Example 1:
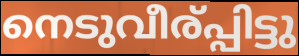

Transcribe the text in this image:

നെടുവീര്പ്പിട്ടു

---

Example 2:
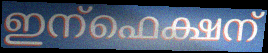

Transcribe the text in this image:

ഇന്ഫെക്ഷന്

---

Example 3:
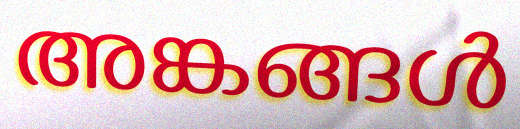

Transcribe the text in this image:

അങ്കങ്ങൾ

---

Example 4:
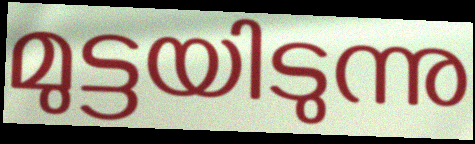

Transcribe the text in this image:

മുട്ടയിടുന്നു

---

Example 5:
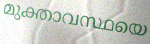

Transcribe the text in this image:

മുക്താവസ്ഥയെ